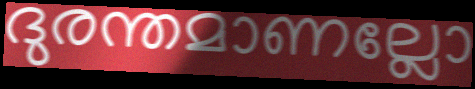
ദുരന്തമാണല്ലോ